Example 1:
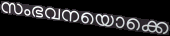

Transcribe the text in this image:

സംഭവനയൊക്കെ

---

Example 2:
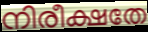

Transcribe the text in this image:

നിരീക്ഷതേ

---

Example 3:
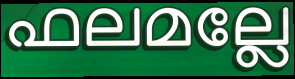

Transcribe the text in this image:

ഫലമല്ലേ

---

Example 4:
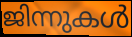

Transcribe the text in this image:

ജിന്നുകൾ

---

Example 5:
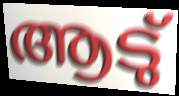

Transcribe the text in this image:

ആടു്